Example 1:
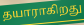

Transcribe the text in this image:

தயாராகிறது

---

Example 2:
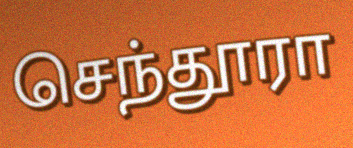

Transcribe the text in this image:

செந்தூரா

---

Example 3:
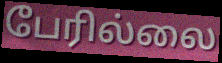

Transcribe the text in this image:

பேரில்லை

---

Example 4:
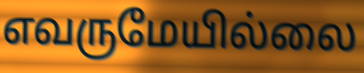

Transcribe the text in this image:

எவருமேயில்லை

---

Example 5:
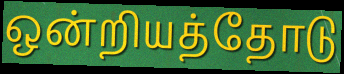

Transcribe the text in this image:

ஒன்றியத்தோடு